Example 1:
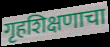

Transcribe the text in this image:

गृहशिक्षणाचा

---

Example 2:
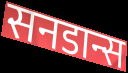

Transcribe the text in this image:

सनडान्स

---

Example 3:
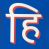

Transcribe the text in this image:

हि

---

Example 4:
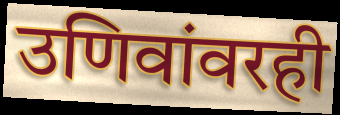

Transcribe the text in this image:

उणिवांवरही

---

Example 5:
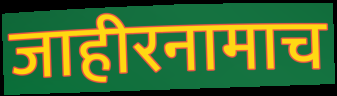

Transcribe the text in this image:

जाहीरनामाच